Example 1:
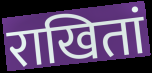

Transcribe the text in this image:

राखितां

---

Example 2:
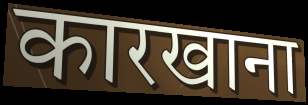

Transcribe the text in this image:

कारखाना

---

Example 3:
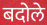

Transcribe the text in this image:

बदोले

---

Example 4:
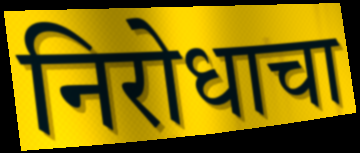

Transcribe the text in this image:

निरोधाचा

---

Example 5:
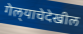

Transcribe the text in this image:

गेल्याचेदेखील